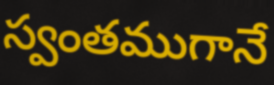
స్వంతముగానే